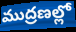
ముద్రణల్లో